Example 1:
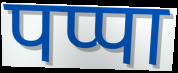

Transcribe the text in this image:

पप्‍पा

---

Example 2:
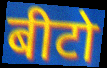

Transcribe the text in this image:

बीटो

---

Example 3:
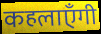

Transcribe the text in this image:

कहलाएँगी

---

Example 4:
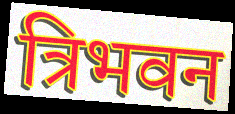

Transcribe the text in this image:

त्रिभवन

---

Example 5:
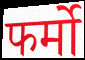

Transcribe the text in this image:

फर्मो